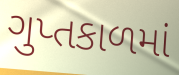
ગુપ્તકાળમાં